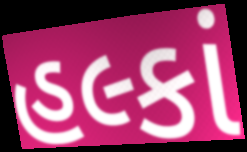
હલ્કાં